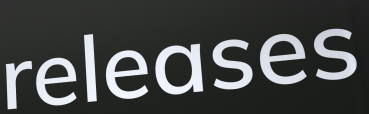
releases